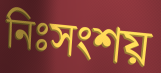
নিঃসংশয়